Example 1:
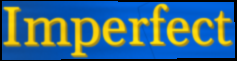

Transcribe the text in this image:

Imperfect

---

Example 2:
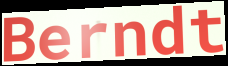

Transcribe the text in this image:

Berndt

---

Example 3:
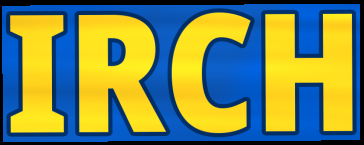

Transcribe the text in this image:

IRCH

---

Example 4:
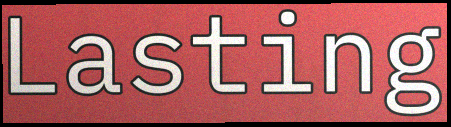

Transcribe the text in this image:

Lasting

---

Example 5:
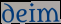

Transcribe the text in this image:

deim